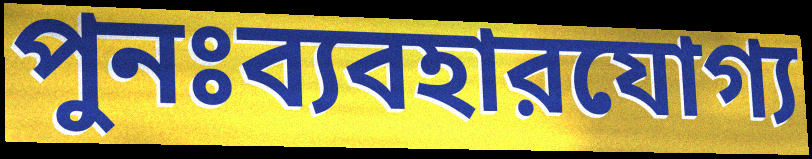
পুনঃব্যবহারযোগ্য